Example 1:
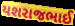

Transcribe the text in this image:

યશરાજભાઈ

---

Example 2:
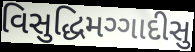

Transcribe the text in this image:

વિસુદ્ધિમગ્ગાદીસુ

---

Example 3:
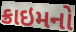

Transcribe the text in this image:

ક્રાઇમનો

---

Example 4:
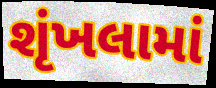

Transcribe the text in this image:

શૃંખલામાં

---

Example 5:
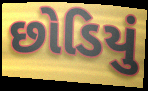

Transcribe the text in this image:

છોડિયું